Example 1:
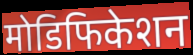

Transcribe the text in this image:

मोडिफिकेशन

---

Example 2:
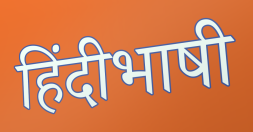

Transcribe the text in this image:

हिंदीभाषी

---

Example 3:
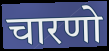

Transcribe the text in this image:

चारणो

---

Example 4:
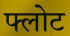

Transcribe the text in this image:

फ्लोट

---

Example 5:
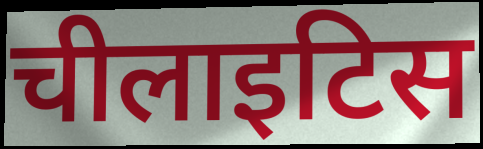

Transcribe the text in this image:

चीलाइटिस